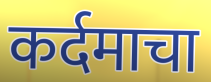
कर्दमाचा